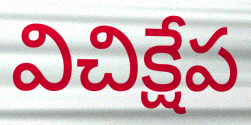
విచిక్షేప